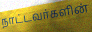
நாட்டவர்களின்